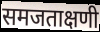
समजताक्षणी